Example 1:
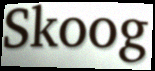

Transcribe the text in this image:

Skoog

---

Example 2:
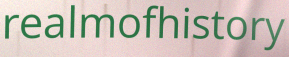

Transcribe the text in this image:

realmofhistory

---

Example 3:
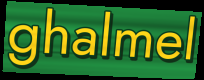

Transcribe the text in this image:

ghalmel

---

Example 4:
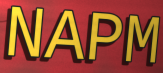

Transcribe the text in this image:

NAPM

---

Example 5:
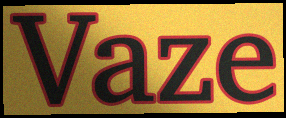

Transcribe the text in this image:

Vaze